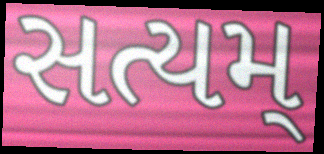
સત્યમ્